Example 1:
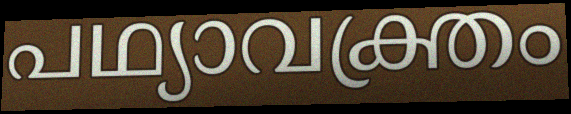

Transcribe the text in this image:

പഥ്യാവക്ത്രം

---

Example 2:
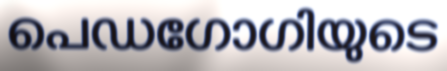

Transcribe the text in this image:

പെഡഗോഗിയുടെ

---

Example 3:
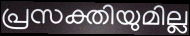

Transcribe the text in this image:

പ്രസക്തിയുമില്ല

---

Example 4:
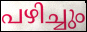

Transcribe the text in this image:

പഴിച്ചും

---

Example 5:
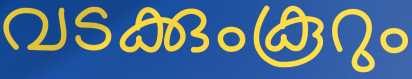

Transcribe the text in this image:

വടക്കുംകൂറും